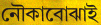
নৌকাবোঝাই